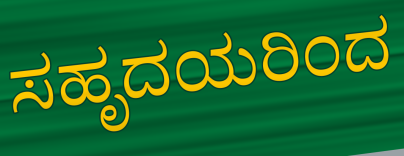
ಸಹೃದಯರಿಂದ